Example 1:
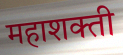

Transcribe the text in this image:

महाशक्‍ती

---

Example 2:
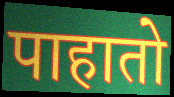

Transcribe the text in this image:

पाहातो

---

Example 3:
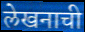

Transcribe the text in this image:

लेखनाची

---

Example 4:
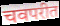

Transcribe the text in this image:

चवपरीत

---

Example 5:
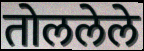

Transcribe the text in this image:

तोललेले